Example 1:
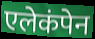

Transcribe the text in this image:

एलेकंपेन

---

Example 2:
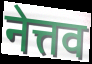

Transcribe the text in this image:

नेत्तव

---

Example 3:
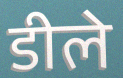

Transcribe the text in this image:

डीले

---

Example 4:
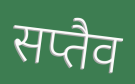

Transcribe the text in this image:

सप्तैव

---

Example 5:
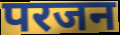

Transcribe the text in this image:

परजन